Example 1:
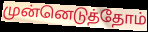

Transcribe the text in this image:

முன்னெடுத்தோம்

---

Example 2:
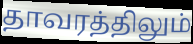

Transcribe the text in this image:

தாவரத்திலும்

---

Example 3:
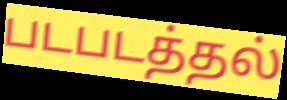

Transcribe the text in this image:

படபடத்தல்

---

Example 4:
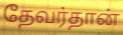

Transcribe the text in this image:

தேவர்தான்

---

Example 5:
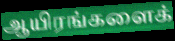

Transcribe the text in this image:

ஆயிரங்களைக்